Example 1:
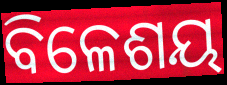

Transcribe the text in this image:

ବିଳେଶୟ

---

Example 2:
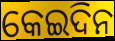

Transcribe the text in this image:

କେଇଦିନ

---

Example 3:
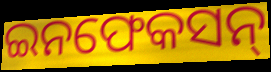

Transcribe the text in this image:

ଇନଫେକସନ୍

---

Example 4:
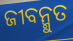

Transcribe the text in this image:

ଜୀବନ୍ମୁତ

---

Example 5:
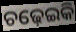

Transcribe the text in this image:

ଚଢ଼େଇକି